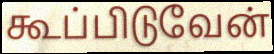
கூப்பிடுவேன்